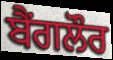
ਬੈਂਗਲੌਰ